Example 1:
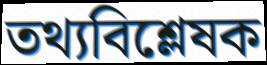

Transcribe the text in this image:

তথ্যবিশ্লেষক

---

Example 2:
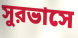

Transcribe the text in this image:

সুরভাসে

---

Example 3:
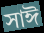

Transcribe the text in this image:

সাঈ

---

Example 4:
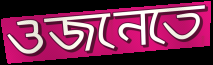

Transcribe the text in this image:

ওজনেতে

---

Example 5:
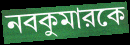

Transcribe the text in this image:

নবকুমারকে